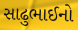
સાઢુભાઈનો